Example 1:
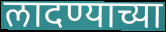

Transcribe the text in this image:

लादण्याच्या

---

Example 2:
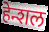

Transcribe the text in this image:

हेन्शल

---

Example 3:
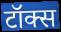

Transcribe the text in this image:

टॉक्स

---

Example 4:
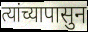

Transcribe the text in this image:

त्यांच्यापासुन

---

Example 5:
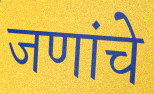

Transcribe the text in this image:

जणांचे